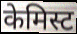
केमिस्ट